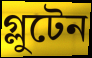
গ্লুটেন